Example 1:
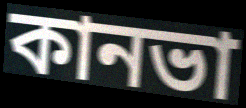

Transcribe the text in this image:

কানভা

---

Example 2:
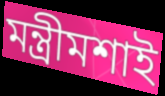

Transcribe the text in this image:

মন্ত্রীমশাই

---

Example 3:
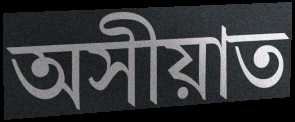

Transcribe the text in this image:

অসীয়াত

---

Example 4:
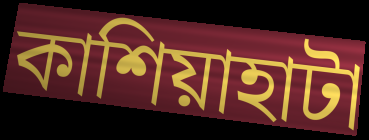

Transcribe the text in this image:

কাশিয়াহাটা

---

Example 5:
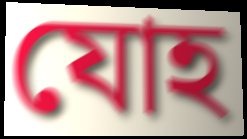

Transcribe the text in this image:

যোহ